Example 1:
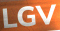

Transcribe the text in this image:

LGV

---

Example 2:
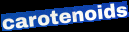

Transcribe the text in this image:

carotenoids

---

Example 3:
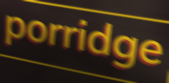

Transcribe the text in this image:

porridge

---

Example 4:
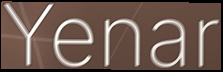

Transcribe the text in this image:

Yenar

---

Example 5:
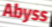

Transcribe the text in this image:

Abyss